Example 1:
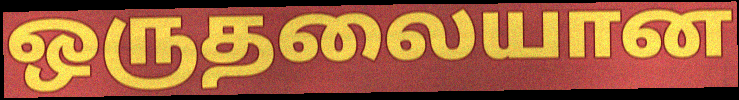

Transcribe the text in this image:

ஒருதலையான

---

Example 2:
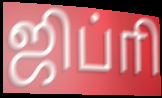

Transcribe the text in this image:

ஜிப்ரி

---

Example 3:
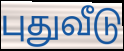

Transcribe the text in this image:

புதுவீடு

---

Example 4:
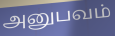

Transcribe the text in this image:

அனுபவம்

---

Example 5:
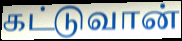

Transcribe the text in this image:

கட்டுவான்